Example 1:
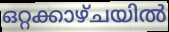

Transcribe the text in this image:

ഒറ്റക്കാഴ്ചയിൽ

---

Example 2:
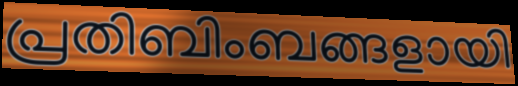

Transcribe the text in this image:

പ്രതിബിംബങ്ങളായി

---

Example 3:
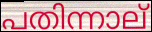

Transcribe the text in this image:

പതിന്നാല്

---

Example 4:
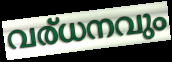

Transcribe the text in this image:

വര്ധനവും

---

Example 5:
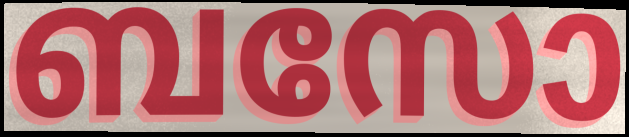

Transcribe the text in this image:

ബസോ